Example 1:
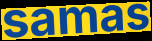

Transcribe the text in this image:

samas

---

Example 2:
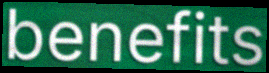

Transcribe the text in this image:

benefits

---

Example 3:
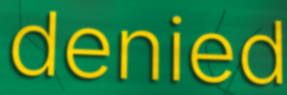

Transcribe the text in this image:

denied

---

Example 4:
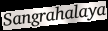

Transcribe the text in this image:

Sangrahalaya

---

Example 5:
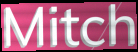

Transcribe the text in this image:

Mitch